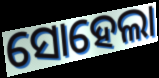
ସୋହେଲା